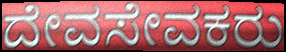
ದೇವಸೇವಕರು